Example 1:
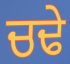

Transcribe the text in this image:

ਚਢੇ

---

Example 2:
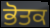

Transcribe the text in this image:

ਭੋਤਕ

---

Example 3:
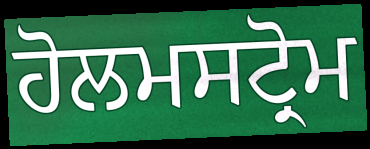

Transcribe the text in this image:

ਹੋਲਮਸਟ੍ਰੋਮ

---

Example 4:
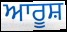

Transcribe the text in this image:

ਆਰੂਸ਼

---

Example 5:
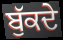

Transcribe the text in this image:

ਬੁੱਕਦੇ